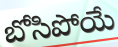
బోసిపోయే